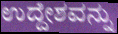
ಉದ್ದೇಶವನ್ನು